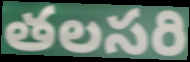
తలసరి